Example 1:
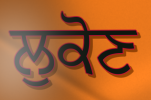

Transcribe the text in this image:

ਲੁਕੋਣ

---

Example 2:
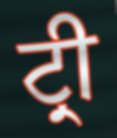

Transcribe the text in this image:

ਟ੍ਰੀ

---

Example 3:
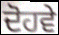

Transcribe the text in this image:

ਦੋਹਵੇ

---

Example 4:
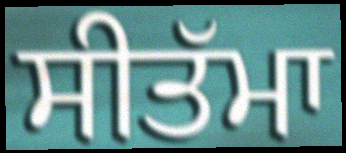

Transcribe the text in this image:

ਸੀਤੱਮਾ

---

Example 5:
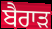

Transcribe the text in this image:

ਬੈਰਾੜ